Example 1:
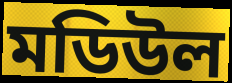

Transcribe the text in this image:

মডিউল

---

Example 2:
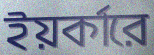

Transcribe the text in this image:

ইয়র্কারে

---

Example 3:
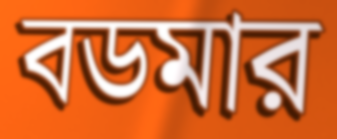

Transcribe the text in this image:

বডমার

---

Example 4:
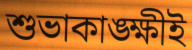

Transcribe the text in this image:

শুভাকাঙ্ক্ষীই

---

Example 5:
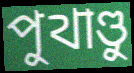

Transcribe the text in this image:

পুথাণ্ডু